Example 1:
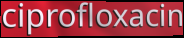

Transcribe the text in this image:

ciprofloxacin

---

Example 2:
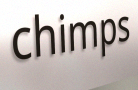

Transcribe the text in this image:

chimps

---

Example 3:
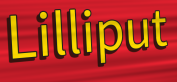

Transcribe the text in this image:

Lilliput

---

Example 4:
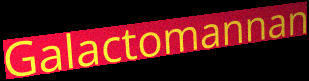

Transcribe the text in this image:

Galactomannan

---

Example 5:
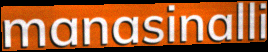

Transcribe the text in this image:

manasinalli